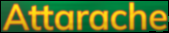
Attarache